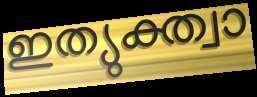
ഇത്യുക്ത്വാ